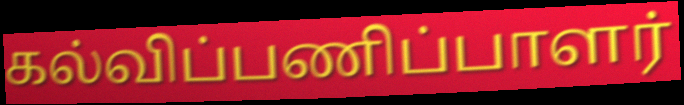
கல்விப்பணிப்பாளர்